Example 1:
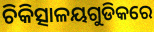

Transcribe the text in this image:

ଚିକିତ୍ସାଳୟଗୁଡିକରେ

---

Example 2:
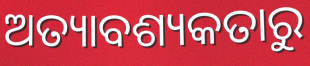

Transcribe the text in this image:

ଅତ୍ୟାବଶ୍ୟକତାରୁ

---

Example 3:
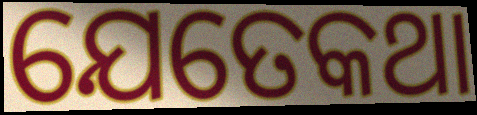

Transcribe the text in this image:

ଯେତେକଥା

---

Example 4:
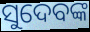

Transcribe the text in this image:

ସୁଦେବଙ୍କ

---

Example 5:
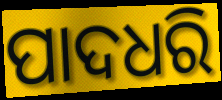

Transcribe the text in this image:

ପାଦଧରି